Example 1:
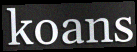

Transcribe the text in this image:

koans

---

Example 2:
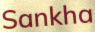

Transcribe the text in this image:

Sankha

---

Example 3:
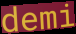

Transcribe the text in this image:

demi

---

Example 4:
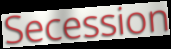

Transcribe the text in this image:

Secession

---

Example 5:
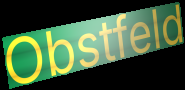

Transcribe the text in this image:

Obstfeld